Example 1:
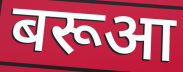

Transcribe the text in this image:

बरूआ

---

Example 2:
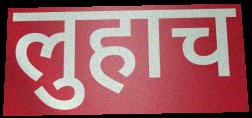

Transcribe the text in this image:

लुहाच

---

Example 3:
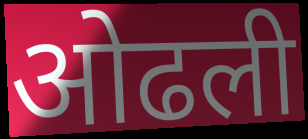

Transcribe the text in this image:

ओढली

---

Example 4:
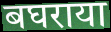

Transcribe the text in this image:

बघराया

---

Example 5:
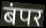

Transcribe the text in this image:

बंपर